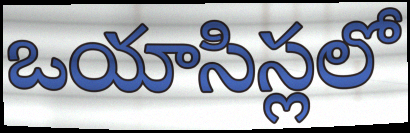
ఒయాసిస్లలో